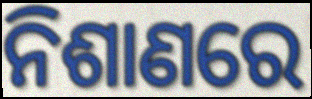
ନିଶାଣରେ